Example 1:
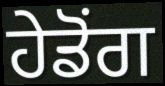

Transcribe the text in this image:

ਹੇਡੋਂਗ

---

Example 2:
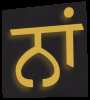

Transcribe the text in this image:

ਨਾਂ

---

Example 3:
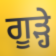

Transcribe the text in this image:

ਗੂੜ੍ਹੇ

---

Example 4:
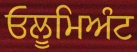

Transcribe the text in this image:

ਓਲੂਮਿਅੰਟ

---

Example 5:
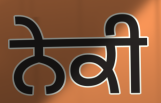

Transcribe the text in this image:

ਨੇਕੀ